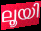
ലൂയി